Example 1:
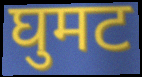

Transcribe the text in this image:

घुमट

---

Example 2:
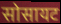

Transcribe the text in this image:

सोसायट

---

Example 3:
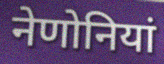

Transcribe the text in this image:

नेणोनियां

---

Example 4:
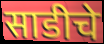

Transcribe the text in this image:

साडीचे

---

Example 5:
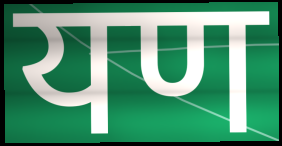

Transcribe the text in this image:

यण